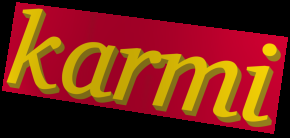
karmi